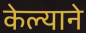
केल्याने